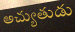
అచ్యుతుడు